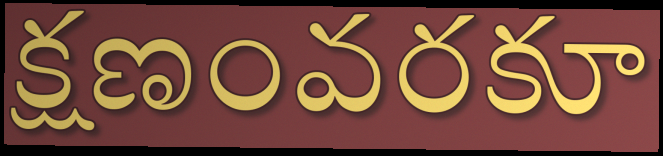
క్షణంవరకూ